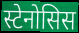
स्टेनोसिस